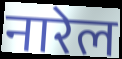
नारेल